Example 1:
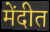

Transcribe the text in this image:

मेंदीत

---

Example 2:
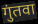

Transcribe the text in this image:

गुंतवा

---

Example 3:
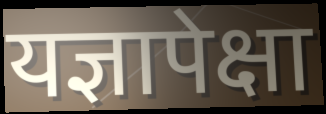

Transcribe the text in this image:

यज्ञापेक्षा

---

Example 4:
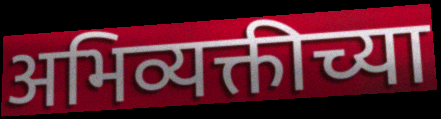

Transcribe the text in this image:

अभिव्यक्तीच्या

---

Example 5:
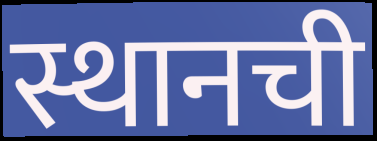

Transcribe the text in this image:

स्थानची